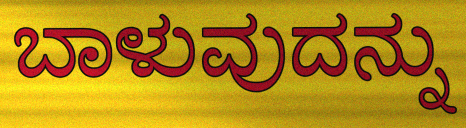
ಬಾಳುವುದನ್ನು